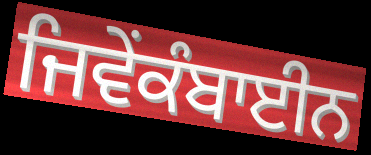
ਜਿਵੇਂਕੰਬਾਈਨ